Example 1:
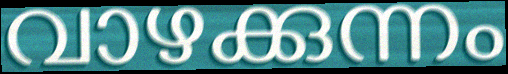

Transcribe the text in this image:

വാഴക്കുന്നം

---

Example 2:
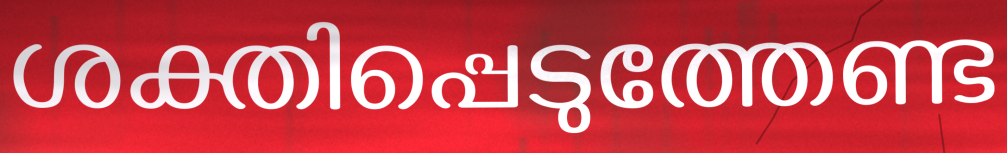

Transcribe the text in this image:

ശക്തിപ്പെടുത്തേണ്ട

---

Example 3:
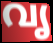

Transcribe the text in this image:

വൃ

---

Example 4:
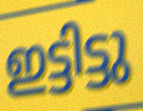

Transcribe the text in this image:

ഇട്ടിട്ടു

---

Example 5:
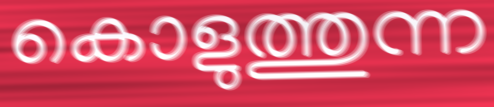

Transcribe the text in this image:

കൊളുത്തുന്ന